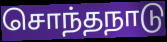
சொந்தநாடு